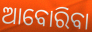
ଆବୋରିବା